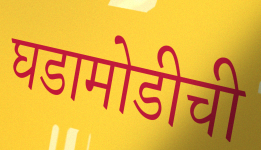
घडामोडीची